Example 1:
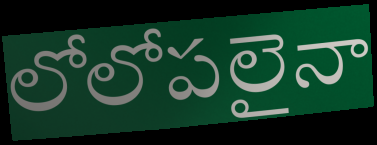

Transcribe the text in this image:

లోలోపలైనా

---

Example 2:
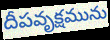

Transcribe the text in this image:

దీపవృక్షమును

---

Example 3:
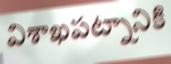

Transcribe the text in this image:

విశాఖపట్నానికి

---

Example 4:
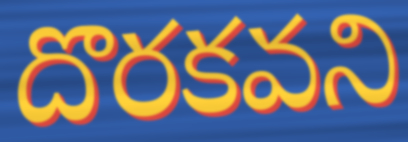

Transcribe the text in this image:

దొరకవని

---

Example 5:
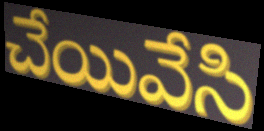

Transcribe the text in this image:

చేయివేసి